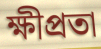
ক্ষীপ্ৰতা